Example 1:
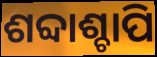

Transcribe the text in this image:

ଶବ୍ଦାଶ୍ଚାପି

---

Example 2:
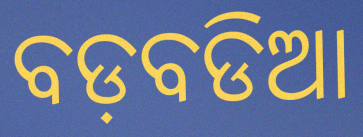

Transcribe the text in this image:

ବଡ଼ବଡିଆ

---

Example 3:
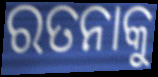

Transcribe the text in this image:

ରତନାକୁ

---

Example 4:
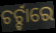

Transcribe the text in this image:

ଚର୍ଚ୍ଚାରେ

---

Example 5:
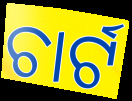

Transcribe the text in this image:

ଚାର୍ଟ